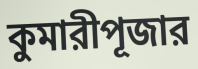
কুমারীপূজার